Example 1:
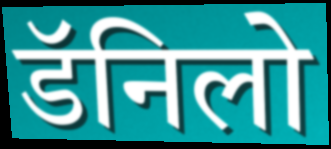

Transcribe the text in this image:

डॅनिलो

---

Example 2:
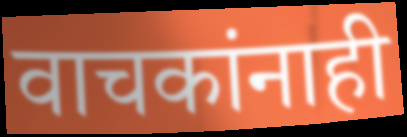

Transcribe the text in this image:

वाचकांनाही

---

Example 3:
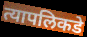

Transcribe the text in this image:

त्यापलिकडे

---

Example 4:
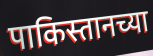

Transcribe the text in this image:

पाकिस्तानच्या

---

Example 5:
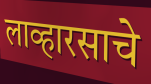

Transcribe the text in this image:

लाव्हारसाचे